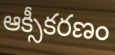
ఆక్సీకరణం